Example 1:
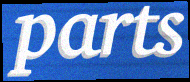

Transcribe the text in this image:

parts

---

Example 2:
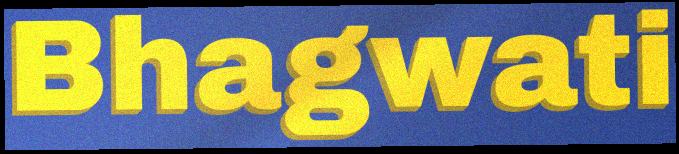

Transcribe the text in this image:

Bhagwati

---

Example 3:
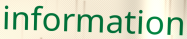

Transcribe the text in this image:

information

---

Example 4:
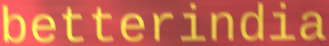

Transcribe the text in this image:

betterindia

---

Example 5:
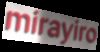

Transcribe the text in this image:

mirayiro